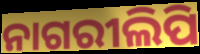
ନାଗରୀଲିପି